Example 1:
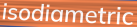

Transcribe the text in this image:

isodiametric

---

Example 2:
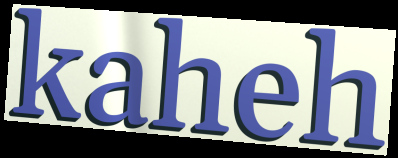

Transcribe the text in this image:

kaheh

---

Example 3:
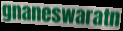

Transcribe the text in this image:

gnaneswaratn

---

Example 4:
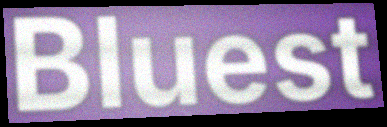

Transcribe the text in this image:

Bluest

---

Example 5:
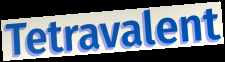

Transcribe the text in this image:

Tetravalent